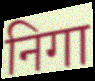
निगा